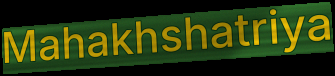
Mahakhshatriya